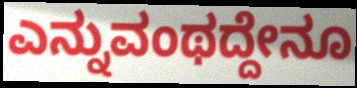
ಎನ್ನುವಂಥದ್ದೇನೂ